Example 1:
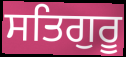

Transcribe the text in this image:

ਸਤਿਗੁਰੂ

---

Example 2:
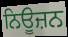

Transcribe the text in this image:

ਨਿਊਜ਼ਨ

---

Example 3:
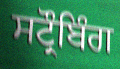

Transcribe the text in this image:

ਸਟ੍ਰੌਬਿੰਗ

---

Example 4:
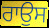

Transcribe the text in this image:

ਰਾਉਸ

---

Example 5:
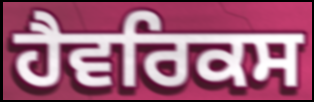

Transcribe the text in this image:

ਹੈਵਰਿਕਸ